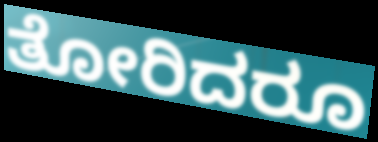
ತೋರಿದರೂ